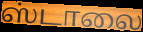
ஸ்டாலை